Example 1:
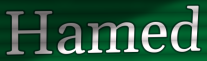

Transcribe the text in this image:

Hamed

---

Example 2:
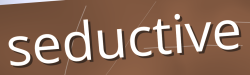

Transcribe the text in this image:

seductive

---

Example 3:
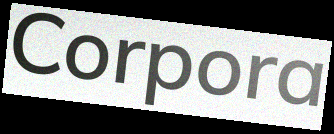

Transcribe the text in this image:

Corpora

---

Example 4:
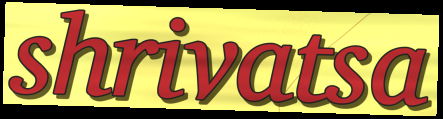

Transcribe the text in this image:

shrivatsa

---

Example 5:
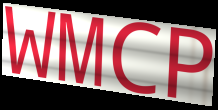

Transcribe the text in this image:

WMCP